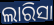
ଲାରିସା